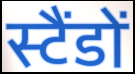
स्टैंडों